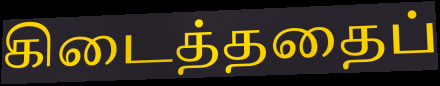
கிடைத்ததைப்